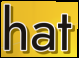
hat